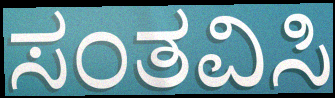
ಸಂತವಿಸಿ